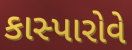
કાસ્પારોવે